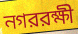
নগররক্ষী